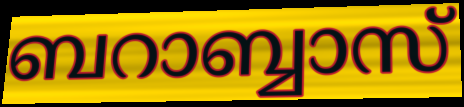
ബറാബ്ബാസ്